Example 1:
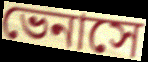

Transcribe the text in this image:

ভেনাসে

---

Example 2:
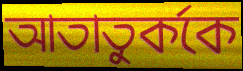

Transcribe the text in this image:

আতাতুর্ককে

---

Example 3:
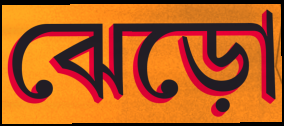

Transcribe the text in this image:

ঝেড়ো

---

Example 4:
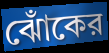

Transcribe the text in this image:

ঝোঁকের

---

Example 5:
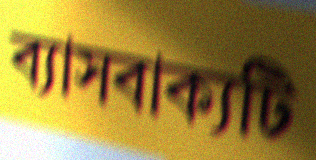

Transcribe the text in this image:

ব্যাসবাক্যটি